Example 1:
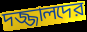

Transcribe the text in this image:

দজ্জালদের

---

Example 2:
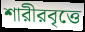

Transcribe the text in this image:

শারীরবৃত্তে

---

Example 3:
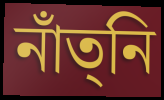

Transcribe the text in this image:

নাঁত্‌নি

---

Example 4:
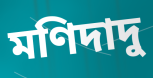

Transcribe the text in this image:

মণিদাদু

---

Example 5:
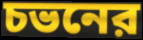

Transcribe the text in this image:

চভনের